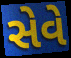
સેવે